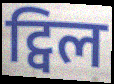
ट्विल